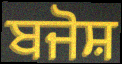
ਬਜੋਸ਼